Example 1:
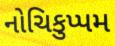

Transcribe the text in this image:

નોચિકુપ્પમ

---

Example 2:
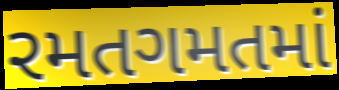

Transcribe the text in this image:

રમતગમતમાં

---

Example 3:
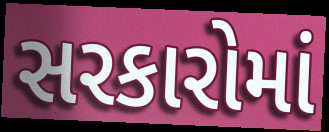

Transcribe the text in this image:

સરકારોમાં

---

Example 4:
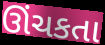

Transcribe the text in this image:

ઊંચકતા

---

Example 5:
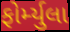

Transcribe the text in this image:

ફોર્મ્યુલા